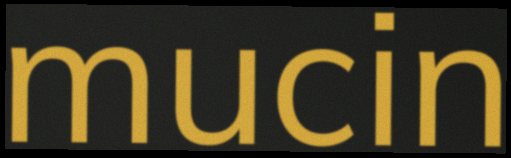
mucin